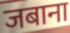
जबाना